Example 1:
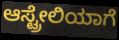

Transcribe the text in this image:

ಆಸ್ಟ್ರೇಲಿಯಾಗೆ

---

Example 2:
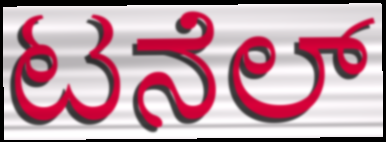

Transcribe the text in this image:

ಟನೆಲ್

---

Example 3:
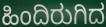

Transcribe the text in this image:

ಹಿಂದಿರುಗಿದ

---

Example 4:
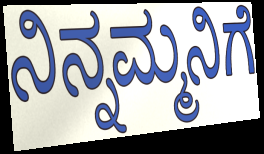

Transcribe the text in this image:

ನಿನ್ನಮ್ಮನಿಗೆ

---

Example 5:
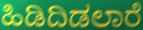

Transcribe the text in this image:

ಹಿಡಿದಿಡಲಾರೆ